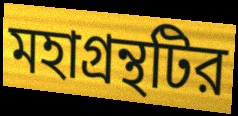
মহাগ্রন্থটির